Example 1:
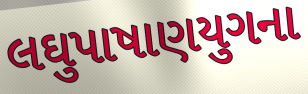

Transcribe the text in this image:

લઘુપાષાણયુગના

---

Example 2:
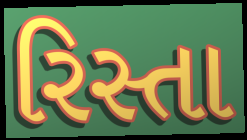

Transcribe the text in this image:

રિસ્તા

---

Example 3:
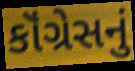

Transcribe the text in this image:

કૉંગ્રેસનું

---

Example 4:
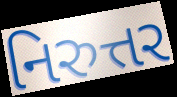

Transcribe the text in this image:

નિરુત્તર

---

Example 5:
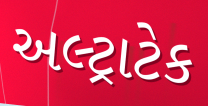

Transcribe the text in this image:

અલ્ટ્રાટેક